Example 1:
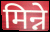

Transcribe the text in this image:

मिन्ने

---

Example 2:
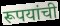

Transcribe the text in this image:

रूपयांची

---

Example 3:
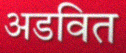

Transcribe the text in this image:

अडवित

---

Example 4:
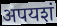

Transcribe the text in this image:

अपयशं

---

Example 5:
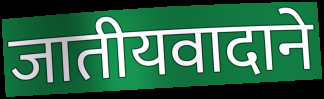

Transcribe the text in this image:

जातीयवादाने